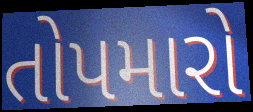
તોપમારો